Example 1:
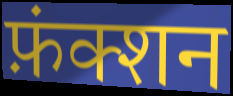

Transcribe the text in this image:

फ़ंक्शन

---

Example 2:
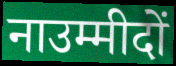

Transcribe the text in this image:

नाउम्मीदों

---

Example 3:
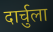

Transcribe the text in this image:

दार्चुला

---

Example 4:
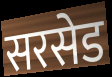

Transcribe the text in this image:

सरसेड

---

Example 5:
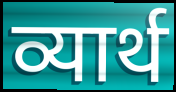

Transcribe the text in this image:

व्यार्थ